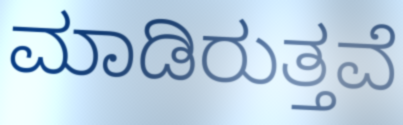
ಮಾಡಿರುತ್ತವೆ